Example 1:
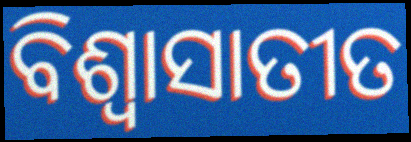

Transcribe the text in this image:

ବିଶ୍ୱାସାତୀତ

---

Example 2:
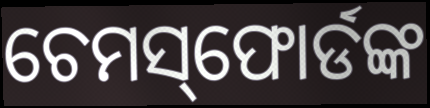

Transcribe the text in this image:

ଚେମସ୍‌ଫୋର୍ଡଙ୍କ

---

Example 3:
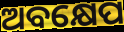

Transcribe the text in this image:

ଅବକ୍ଷେପ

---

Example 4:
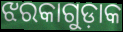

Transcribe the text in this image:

ଝରକାଗୁଡ଼ାକ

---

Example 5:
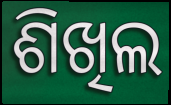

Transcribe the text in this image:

ଶିଖିଲ